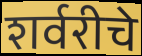
शर्वरीचे